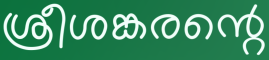
ശ്രീശങ്കരന്റെ